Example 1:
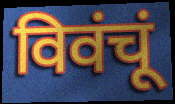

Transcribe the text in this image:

विवंचूं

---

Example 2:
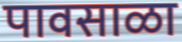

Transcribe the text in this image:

पावसाळा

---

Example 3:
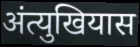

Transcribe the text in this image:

अंत्युखियास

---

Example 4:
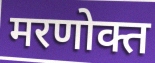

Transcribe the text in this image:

मरणोक्त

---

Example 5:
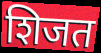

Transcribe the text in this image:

शिजत